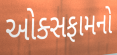
ઓક્સફામનો